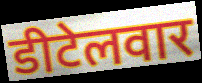
डीटेलवार